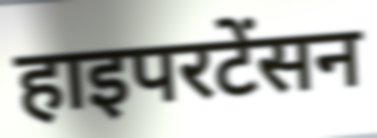
हाइपरटेंसन